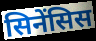
सिनेंसिस